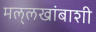
मल्लखांबाशी